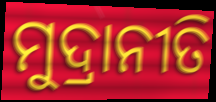
ମୁଦ୍ରାନୀତି